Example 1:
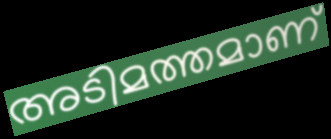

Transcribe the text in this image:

അടിമത്തമാണ്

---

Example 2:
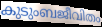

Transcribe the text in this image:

കുടുംബജീവിതം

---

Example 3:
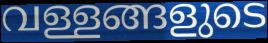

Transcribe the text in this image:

വള്ളങ്ങളുടെ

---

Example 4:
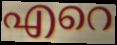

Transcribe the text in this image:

എറെ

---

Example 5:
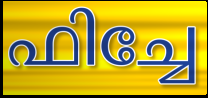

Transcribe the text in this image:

ഫിച്ചേ